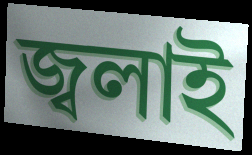
জ্বলাই